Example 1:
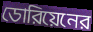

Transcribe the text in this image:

ডোরিয়েনের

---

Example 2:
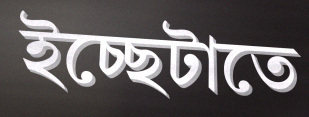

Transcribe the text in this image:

ইচ্ছেটাতে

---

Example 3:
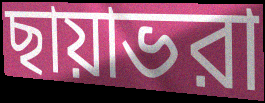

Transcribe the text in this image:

ছায়াভরা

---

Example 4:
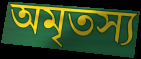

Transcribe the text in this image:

অমৃতস্য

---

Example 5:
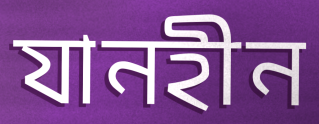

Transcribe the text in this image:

যানহীন